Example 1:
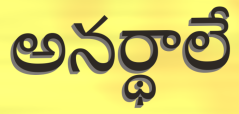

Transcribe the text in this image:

అనర్థాలే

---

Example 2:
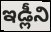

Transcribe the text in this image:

ఇడ్లీని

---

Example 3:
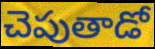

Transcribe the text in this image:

చెపుతాడో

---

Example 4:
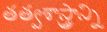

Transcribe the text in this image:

తత్వశాస్త్రాన్ని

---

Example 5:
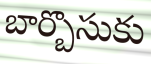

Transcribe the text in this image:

బార్బొసుకు